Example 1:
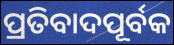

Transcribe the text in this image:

ପ୍ରତିବାଦପୂର୍ବକ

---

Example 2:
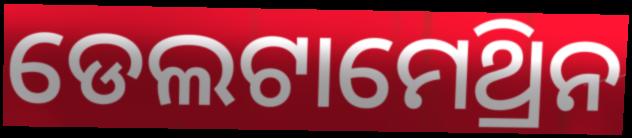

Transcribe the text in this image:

ଡେଲଟାମେଥ୍ରିନ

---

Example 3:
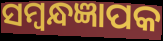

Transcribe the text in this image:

ସମ୍ବନ୍ଧଜ୍ଞାପକ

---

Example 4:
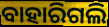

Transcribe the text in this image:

ବାହାରିଗଲି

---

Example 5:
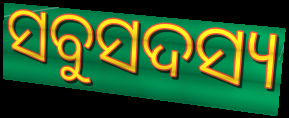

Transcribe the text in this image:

ସବୁସଦସ୍ୟ